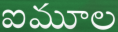
ఐమూల